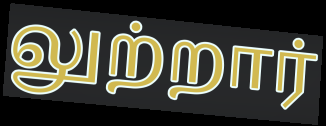
லுற்றார்